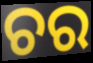
ଚର